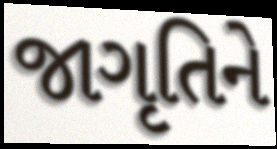
જાગૃતિને